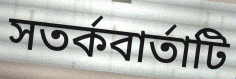
সতর্কবার্তাটি